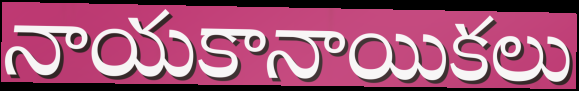
నాయకానాయికలు